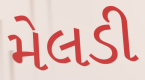
મેલડી